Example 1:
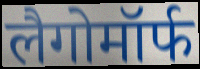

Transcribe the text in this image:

लैगोमॉर्फ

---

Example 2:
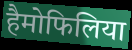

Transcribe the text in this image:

हैमोफिलिया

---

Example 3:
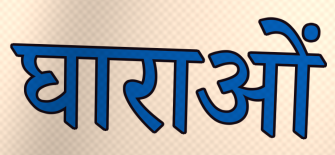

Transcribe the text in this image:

घाराओं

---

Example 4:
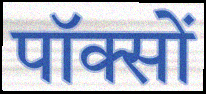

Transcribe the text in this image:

पॉक्सों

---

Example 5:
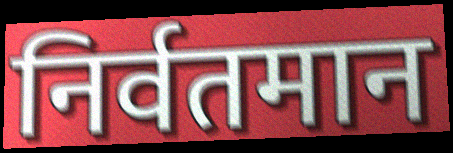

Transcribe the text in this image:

निर्वतमान